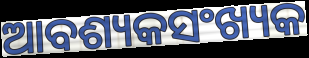
ଆବଶ୍ୟକସଂଖ୍ୟକ